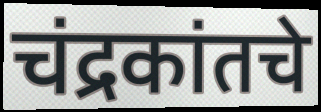
चंद्रकांतचे